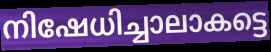
നിഷേധിച്ചാലാകട്ടെ